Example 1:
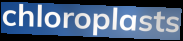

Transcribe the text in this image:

chloroplasts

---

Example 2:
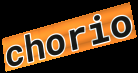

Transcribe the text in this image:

chorio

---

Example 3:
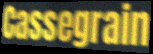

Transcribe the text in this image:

Cassegrain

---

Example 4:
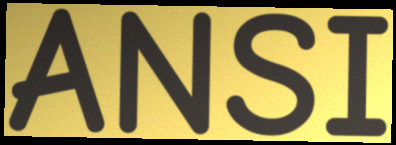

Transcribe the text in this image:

ANSI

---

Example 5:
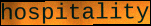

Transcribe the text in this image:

hospitality